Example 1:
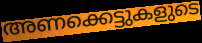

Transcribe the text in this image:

അണക്കെട്ടുകളുടെ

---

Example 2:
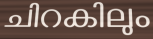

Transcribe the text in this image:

ചിറകിലും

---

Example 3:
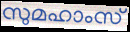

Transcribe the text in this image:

സുമഹാംസ്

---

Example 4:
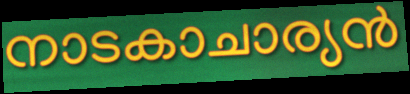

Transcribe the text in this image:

നാടകാചാര്യൻ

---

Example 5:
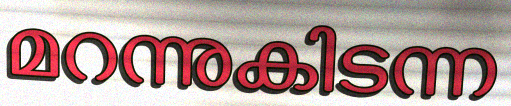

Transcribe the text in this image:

മറന്നുകിടന്ന